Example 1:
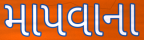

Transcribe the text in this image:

માપવાના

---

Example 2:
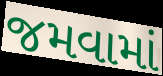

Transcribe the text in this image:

જમવામાં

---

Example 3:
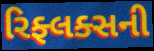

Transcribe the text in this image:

રિફ્લક્સની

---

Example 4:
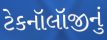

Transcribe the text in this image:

ટેકનૉલૉજીનું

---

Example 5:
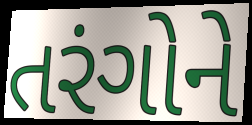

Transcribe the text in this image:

તરંગોને